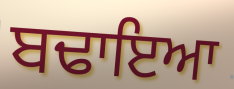
ਬਢਾਇਆ